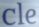
cle